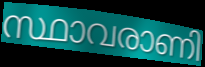
സ്ഥാവരാണി